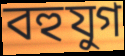
বহুযুগ